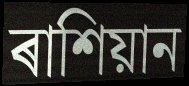
ৰাশিয়ান